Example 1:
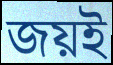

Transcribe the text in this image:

জয়ই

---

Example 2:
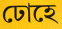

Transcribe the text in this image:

ঢোহে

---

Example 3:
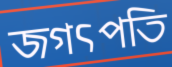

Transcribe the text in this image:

জগৎপতি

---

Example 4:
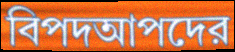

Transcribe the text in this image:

বিপদআপদের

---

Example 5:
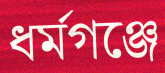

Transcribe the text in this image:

ধর্মগঞ্জে